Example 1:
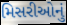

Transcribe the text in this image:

મિસરીઓનું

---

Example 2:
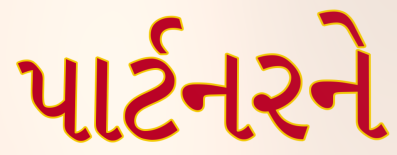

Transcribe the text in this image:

પાર્ટનરને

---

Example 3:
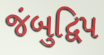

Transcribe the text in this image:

જંબુદ્વિપ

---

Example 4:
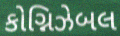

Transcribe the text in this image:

કોગ્નિઝેબલ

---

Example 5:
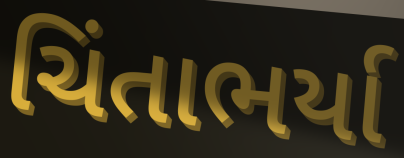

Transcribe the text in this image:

ચિંતાભર્યા